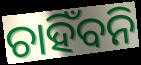
ଚାହିଁବନି